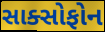
સાક્સોફોન